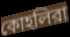
কোহলিরা